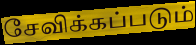
சேவிக்கப்படும்